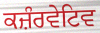
ਕਜ਼ੰਰਵੇਟਿਵ